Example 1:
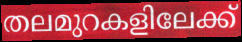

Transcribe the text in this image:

തലമുറകളിലേക്ക്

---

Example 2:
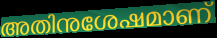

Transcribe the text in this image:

അതിനുശേഷമാണ്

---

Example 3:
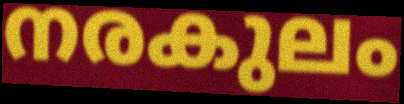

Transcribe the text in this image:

നരകുലം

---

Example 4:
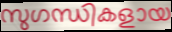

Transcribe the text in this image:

സുഗന്ധികളായ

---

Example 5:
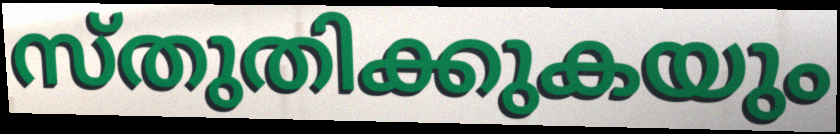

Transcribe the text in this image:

സ്തുതിക്കുകയും